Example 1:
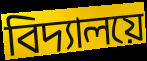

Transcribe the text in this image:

বিদ্যালয়ে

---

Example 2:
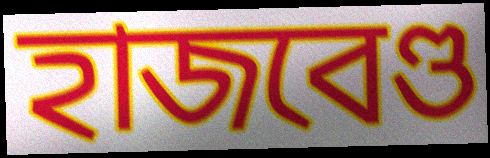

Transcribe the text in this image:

হাজবেণ্ড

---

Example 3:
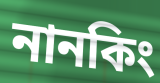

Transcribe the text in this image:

নানকিং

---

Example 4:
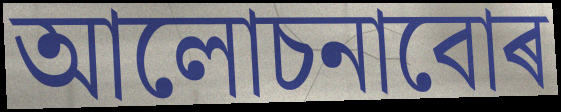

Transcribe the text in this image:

আলোচনাবোৰ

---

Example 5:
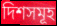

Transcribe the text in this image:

দিশসমূহ